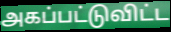
அகப்பட்டுவிட்ட